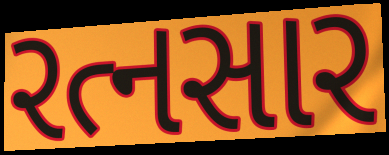
રત્નસાર